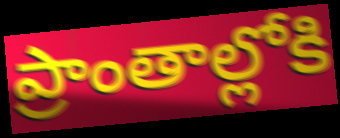
ప్రాంతాల్లోకి